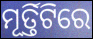
ମୂର୍ତ୍ତିଟିରେ